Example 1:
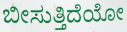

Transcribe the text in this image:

ಬೀಸುತ್ತಿದೆಯೋ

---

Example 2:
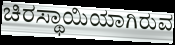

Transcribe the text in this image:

ಚಿರಸ್ಥಾಯಿಯಾಗಿರುವ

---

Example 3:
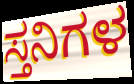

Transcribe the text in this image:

ಸ್ತನಿಗಳ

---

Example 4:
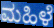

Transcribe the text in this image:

ಮಹಿಳೆ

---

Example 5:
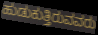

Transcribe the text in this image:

ಹುಡುಕುತ್ತಿರುವವರು